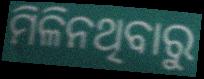
ମିଳିନଥିବାରୁ